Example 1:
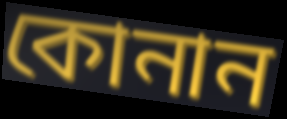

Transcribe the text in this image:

কোনান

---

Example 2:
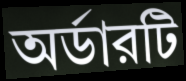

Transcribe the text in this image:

অর্ডারটি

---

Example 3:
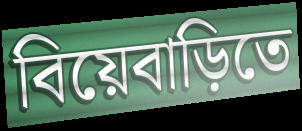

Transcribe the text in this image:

বিয়েবাড়িতে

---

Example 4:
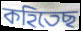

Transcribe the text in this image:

কহিতেছ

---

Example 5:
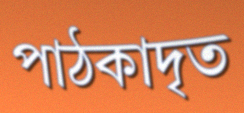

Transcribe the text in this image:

পাঠকাদৃত